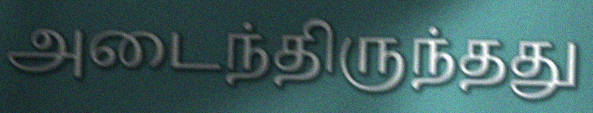
அடைந்திருந்தது